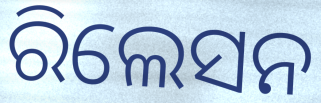
ରିଲେସନ